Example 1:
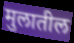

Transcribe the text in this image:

मुलातील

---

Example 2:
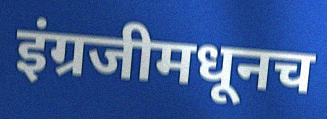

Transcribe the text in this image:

इंग्रजीमधूनच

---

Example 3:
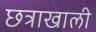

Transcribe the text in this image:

छत्राखाली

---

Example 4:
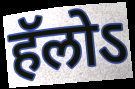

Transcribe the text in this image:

हॅलोऽ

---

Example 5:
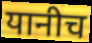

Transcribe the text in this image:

यानीच